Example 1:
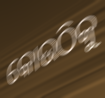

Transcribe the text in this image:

କୋଉଠିକୁ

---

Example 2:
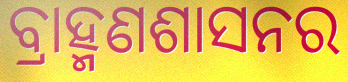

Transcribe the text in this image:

ବ୍ରାହ୍ମଣଶାସନର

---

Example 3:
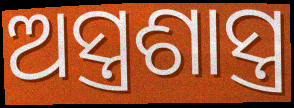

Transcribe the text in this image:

ଅସ୍ତ୍ରଶାସ୍ତ୍ର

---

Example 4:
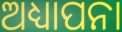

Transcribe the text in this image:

ଅଧ୍ୟାପନା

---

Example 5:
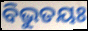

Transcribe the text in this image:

ବିଭୁତୟଃ